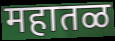
महातळ